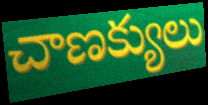
చాణక్యులు